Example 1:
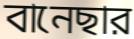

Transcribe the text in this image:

বানেছার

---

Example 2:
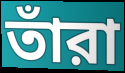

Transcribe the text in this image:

তাঁরা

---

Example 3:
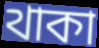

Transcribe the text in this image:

থাকা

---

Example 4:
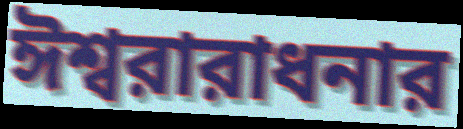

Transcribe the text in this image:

ঈশ্বরারাধনার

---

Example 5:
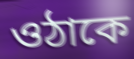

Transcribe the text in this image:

ওঠাকে